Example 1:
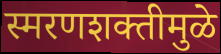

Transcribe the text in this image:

स्मरणशक्तीमुळे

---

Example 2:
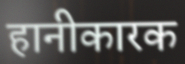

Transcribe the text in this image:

हानीकारक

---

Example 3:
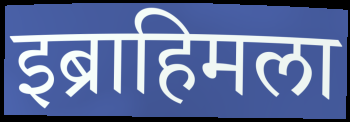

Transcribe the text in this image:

इब्राहिमला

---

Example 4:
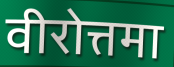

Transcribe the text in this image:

वीरोत्तमा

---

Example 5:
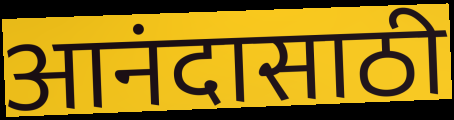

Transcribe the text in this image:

आनंदासाठी